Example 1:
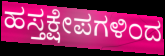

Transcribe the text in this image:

ಹಸ್ತಕ್ಷೇಪಗಳಿಂದ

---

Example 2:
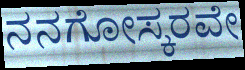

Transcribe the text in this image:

ನನಗೋಸ್ಕರವೇ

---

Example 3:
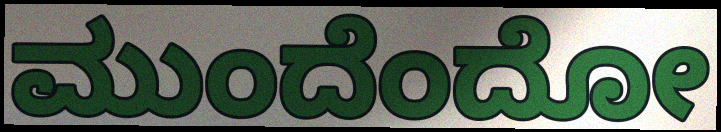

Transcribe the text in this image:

ಮುಂದೆಂದೋ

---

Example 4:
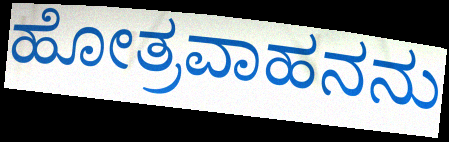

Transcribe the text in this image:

ಹೋತ್ರವಾಹನನು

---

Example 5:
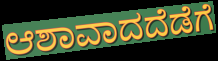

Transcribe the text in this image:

ಆಶಾವಾದದೆಡೆಗೆ